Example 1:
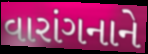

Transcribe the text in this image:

વારાંગનાને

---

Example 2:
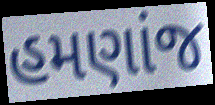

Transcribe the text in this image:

હમણાંજ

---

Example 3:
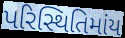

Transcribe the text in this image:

પરિસ્થિતિમાંય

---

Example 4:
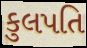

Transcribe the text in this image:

કુલપતિ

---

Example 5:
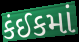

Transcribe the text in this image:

કંઈકમાં